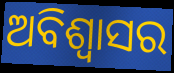
ଅବିଶ୍ବାସର